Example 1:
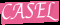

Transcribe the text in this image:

CASEL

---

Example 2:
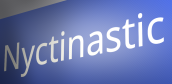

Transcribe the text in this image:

Nyctinastic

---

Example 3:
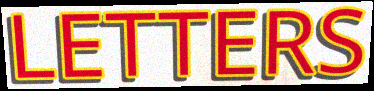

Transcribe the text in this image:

LETTERS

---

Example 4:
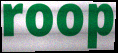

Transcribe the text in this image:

roop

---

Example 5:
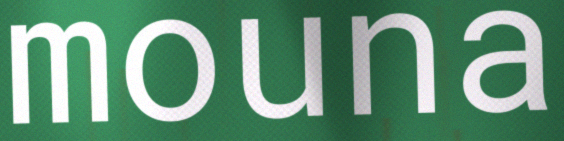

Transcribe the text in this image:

mouna